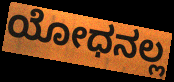
ಯೋಧನಲ್ಲ